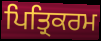
ਪਿਤ੍ਰਿਕਰਮ